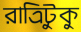
রাত্রিটুকু